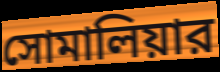
সোমালিয়ার